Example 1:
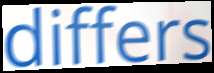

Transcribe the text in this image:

differs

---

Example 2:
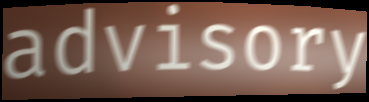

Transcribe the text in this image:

advisory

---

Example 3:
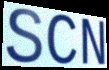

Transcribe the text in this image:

SCN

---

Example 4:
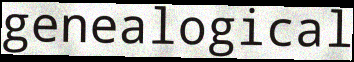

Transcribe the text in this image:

genealogical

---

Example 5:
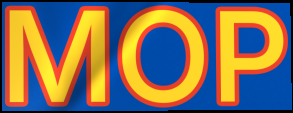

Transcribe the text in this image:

MOP